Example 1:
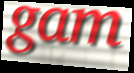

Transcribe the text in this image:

gam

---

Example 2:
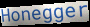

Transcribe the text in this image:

Honegger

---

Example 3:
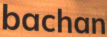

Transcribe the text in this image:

bachan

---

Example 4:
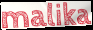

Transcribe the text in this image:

malika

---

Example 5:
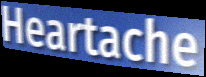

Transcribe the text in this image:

Heartache